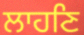
ਲਾਹਣਿ